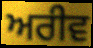
ਅਰੀਵ